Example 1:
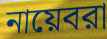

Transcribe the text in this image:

নায়েবরা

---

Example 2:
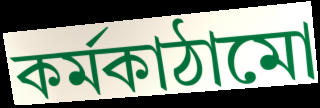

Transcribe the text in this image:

কর্মকাঠামো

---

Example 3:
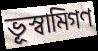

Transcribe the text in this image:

ভূস্বামিগণ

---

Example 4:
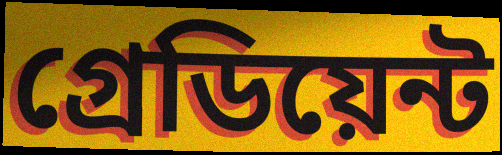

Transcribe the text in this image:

গ্রেডিয়েন্ট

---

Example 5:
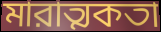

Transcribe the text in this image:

মারাত্মকতা